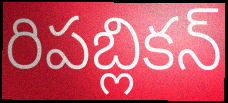
రిపబ్లికన్